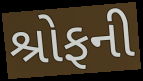
શ્રોફની